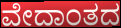
ವೇದಾಂತದ